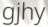
gjhy